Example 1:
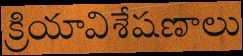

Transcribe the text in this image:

క్రియావిశేషణాలు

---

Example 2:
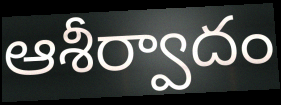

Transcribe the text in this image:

ఆశీర్వాదం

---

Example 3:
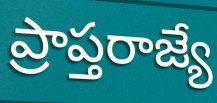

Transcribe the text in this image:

ప్రాప్తరాజ్యే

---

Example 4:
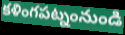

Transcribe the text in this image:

కళింగపట్నంనుండి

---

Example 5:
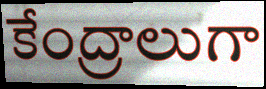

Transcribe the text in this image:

కేంద్రాలుగా